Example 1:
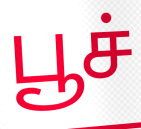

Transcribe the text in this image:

பூச்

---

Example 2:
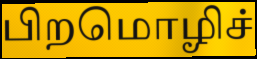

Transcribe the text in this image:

பிறமொழிச்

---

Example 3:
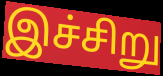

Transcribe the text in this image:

இச்சிறு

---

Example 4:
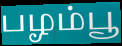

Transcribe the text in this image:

பழம்பூ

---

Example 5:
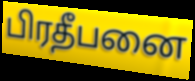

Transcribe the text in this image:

பிரதீபனை